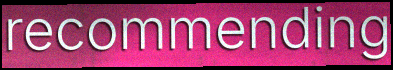
recommending